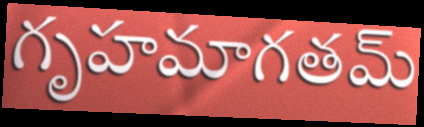
గృహమాగతమ్